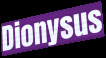
Dionysus